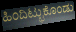
ಹಿಂದಿಟ್ಟುಕೊಂಡು